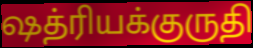
ஷத்ரியக்குருதி